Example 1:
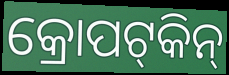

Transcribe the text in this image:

କ୍ରୋପଟ୍‍କିନ୍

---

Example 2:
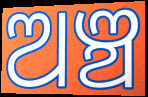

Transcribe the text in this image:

ଅଞ୍ଚ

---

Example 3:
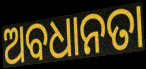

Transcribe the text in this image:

ଅବଧାନତା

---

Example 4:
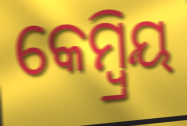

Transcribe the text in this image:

କେମ୍ବ୍ରିୟ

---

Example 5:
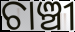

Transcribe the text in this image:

ଚାଞ୍ଚୀ